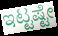
ಇಟ್ಟಷ್ಟೇ